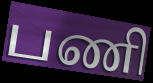
பணி